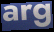
arg